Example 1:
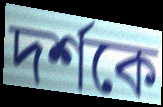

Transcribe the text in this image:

দৰ্শকে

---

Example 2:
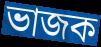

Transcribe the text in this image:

ভাজক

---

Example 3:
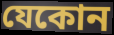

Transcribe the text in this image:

যেকোন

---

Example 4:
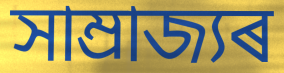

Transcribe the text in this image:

সাম্ৰাজ্যৰ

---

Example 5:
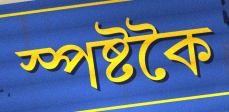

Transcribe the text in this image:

স্পষ্টকৈ